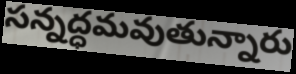
సన్నద్ధమవుతున్నారు